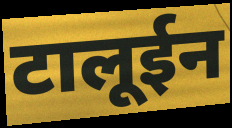
टालूईन